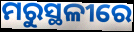
ମରୁସ୍ଥଳୀରେ